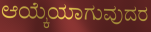
ಆಯ್ಕೆಯಾಗುವುದರ